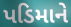
પડિમાને